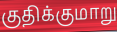
குதிக்குமாறு